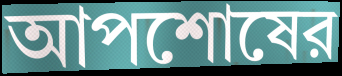
আপশোষের